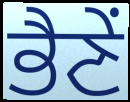
ਭੈਣੇਂ